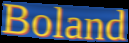
Boland